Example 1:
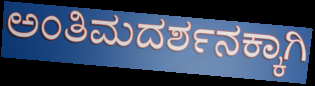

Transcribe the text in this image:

ಅಂತಿಮದರ್ಶನಕ್ಕಾಗಿ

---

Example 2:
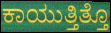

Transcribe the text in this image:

ಕಾಯುತ್ತಿತ್ತೊ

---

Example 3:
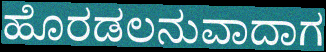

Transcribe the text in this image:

ಹೊರಡಲನುವಾದಾಗ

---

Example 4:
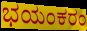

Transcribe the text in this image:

ಭಯಂಕರಂ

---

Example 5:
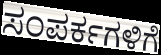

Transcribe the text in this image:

ಸಂಪರ್ಕಗಳಿಗೆ